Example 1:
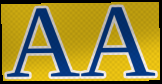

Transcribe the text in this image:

AA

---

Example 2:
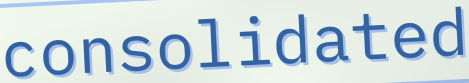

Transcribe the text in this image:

consolidated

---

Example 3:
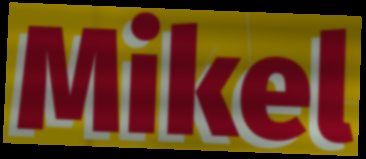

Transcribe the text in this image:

Mikel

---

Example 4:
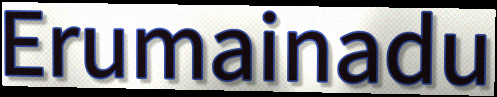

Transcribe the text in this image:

Erumainadu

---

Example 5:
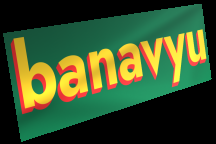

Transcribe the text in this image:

banavyu